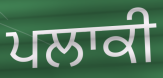
ਪਲਾਕੀ